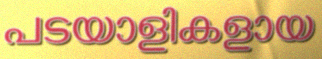
പടയാളികളായ